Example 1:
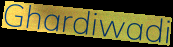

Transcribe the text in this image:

Ghardiwadi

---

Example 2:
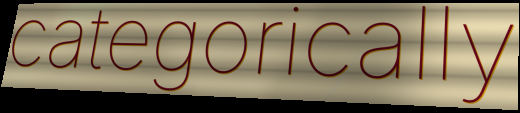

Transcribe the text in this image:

categorically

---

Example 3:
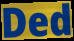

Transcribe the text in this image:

Ded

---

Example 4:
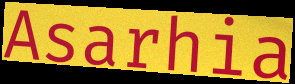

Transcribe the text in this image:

Asarhia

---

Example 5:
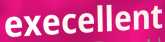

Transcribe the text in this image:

execellent